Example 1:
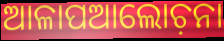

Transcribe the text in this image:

ଆଳାପଆଲୋଚ଼ନା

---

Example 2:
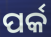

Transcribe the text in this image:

ପର୍କ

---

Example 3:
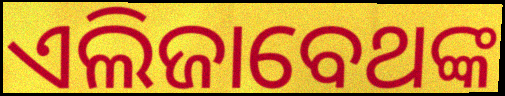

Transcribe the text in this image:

ଏଲିଜାବେଥଙ୍କ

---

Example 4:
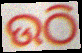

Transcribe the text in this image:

ଉଠି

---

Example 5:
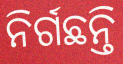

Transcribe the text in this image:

ନିର୍ଗଛନ୍ତି